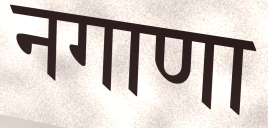
नगाणा